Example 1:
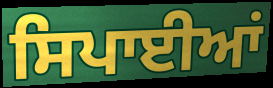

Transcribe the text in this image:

ਸਿਪਾਈਆਂ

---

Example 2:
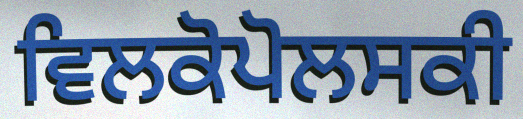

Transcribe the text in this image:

ਵਿਲਕੋਪੋਲਸਕੀ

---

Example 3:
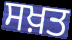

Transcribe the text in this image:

ਸਖ਼ਤ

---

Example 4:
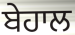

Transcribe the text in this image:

ਬੇਹਾਲ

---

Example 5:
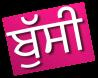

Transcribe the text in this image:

ਬੁੱਸੀ